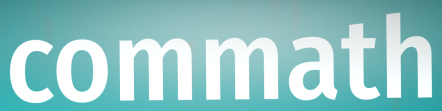
commath